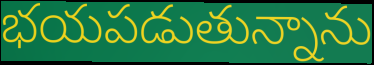
భయపడుతున్నాను